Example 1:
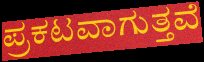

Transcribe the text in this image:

ಪ್ರಕಟವಾಗುತ್ತವೆ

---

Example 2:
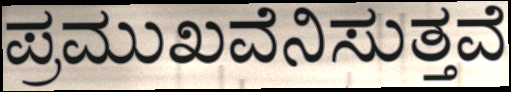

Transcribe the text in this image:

ಪ್ರಮುಖವೆನಿಸುತ್ತವೆ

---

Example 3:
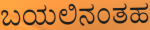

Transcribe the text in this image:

ಬಯಲಿನಂತಹ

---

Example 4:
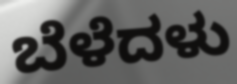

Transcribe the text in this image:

ಬೆಳೆದಳು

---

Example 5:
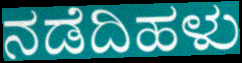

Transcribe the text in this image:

ನಡೆದಿಹಳು